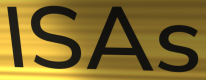
ISAs